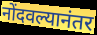
नोंदवल्यानंतर